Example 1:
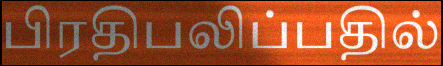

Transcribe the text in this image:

பிரதிபலிப்பதில்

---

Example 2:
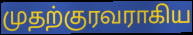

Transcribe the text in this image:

முதற்குரவராகிய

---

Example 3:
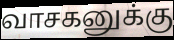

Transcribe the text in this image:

வாசகனுக்கு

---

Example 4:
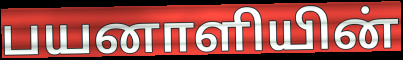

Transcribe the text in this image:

பயனாளியின்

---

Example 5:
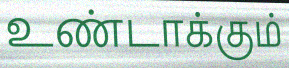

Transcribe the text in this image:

உண்டாக்கும்